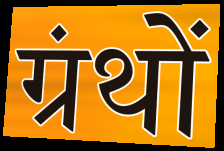
ग्रंथों